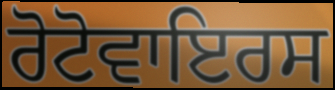
ਰੋਟੋਵਾਇਰਸ